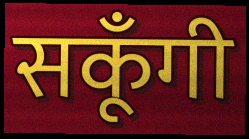
सकूँगी